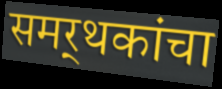
समर्थकांचा